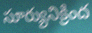
సూర్యునిక్రింద